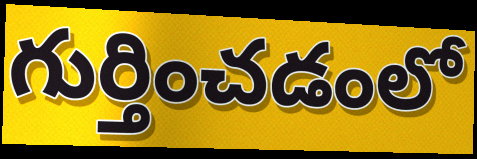
గుర్తించడంలో